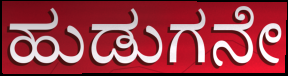
ಹುಡುಗನೇ